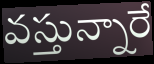
వస్తున్నారే